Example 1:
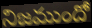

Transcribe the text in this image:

నిజముందో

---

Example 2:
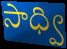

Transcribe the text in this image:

సాధ్వి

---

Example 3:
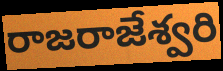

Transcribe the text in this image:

రాజరాజేశ్వరి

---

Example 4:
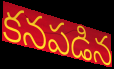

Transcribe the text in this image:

కనపడిన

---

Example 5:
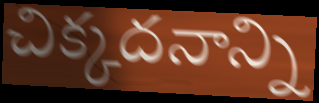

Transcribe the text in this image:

చిక్కదనాన్ని